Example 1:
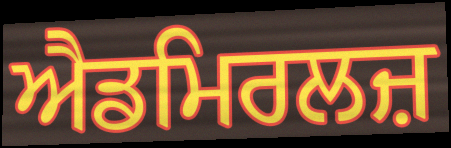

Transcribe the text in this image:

ਐਡਮਿਰਲਜ਼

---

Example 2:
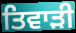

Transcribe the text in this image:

ਤਿਵਾੜੀ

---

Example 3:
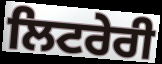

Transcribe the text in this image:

ਲਿਟਰੇਰੀ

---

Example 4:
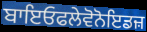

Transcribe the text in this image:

ਬਾਇਓਫਲੇਵੋਨੋਇਡਜ਼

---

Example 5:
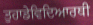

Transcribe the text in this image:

ਤੁਹਾਡੇਵਿਦਿਆਰਥੀ